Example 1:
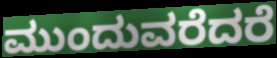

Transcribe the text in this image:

ಮುಂದುವರೆದರೆ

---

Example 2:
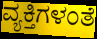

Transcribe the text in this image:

ವ್ಯಕ್ತಿಗಳಂತೆ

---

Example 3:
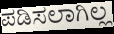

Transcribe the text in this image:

ಪಡಿಸಲಾಗಿಲ್ಲ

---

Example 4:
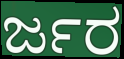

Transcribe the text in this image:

ರ್ಜರ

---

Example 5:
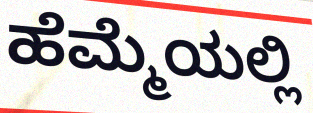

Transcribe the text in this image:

ಹೆಮ್ಮೆಯಲ್ಲಿ